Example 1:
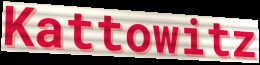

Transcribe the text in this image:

Kattowitz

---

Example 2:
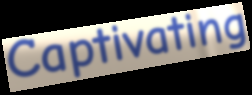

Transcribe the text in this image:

Captivating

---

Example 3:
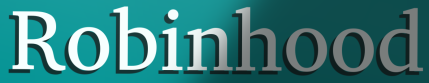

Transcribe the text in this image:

Robinhood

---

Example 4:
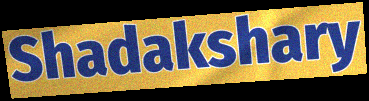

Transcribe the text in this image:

Shadakshary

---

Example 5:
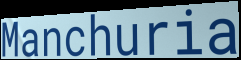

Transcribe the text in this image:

Manchuria